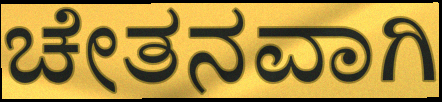
ಚೇತನವಾಗಿ